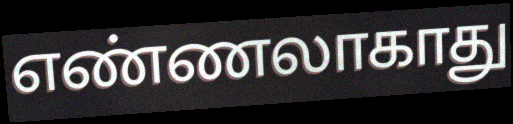
எண்ணலாகாது